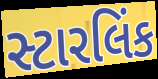
સ્ટારલિંક